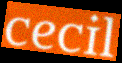
cecil